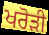
ਖਰੋੜੀ